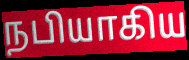
நபியாகிய